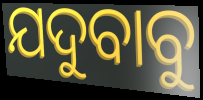
ଯଦୁବାବୁ